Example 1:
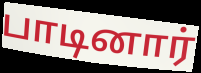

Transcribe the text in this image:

பாடினார்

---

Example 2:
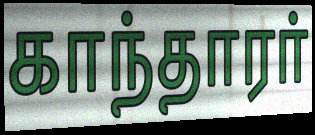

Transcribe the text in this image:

காந்தாரர்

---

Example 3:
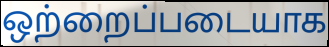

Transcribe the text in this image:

ஒற்றைப்படையாக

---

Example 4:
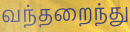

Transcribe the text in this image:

வந்தறைந்து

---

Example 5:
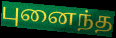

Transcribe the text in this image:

புனைந்த